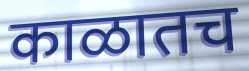
काळातच